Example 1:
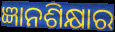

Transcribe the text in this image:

ଜ୍ଞାନଶିକ୍ଷାର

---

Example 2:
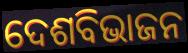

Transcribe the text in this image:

ଦେଶବିଭାଜନ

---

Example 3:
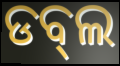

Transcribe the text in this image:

ଡବ୍‌ଲ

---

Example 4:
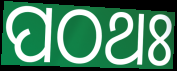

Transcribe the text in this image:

ପଠଥଃ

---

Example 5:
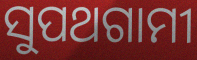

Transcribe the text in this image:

ସୁପଥଗାମୀ